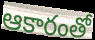
ఆకారంతో